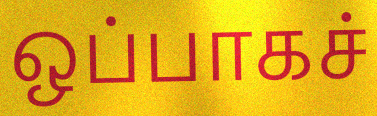
ஒப்பாகச்